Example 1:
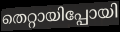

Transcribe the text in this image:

തെറ്റായിപ്പോയി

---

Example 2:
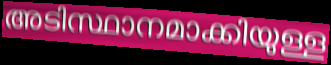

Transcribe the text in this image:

അടിസ്ഥാനമാക്കിയുള്ള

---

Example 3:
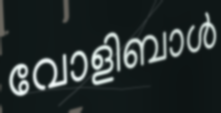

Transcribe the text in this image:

വോളിബാൾ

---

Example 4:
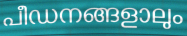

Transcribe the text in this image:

പീഡനങ്ങളാലും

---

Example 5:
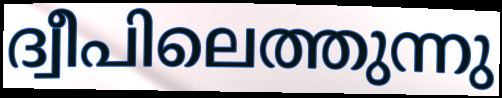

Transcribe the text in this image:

ദ്വീപിലെത്തുന്നു